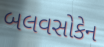
બલવસોકેન